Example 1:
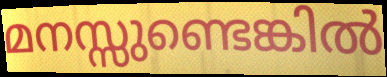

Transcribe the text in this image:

മനസ്സുണ്ടെങ്കിൽ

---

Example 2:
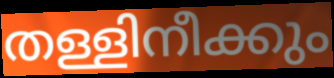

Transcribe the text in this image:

തള്ളിനീക്കും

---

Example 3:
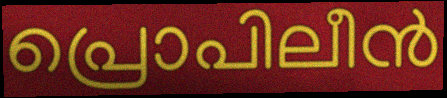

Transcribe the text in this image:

പ്രൊപിലീൻ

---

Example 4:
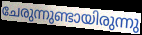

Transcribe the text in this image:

ചേരുന്നുണ്ടായിരുന്നു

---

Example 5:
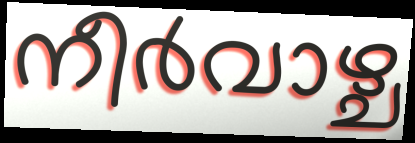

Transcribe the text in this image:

നീർവാഴ്ച